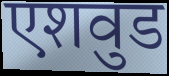
एशवुड